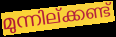
മുന്നില്ക്കണ്ട്